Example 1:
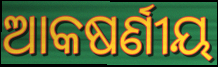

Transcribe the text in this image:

ଆକଷର୍ଣୀୟ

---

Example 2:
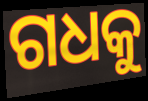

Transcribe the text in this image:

ଗଧକୁ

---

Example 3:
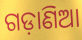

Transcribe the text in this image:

ଗଡ଼ାଣିଆ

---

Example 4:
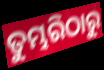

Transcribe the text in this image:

ତୁମ୍ଭରିଠାରୁ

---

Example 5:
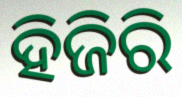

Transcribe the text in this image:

ହିଜିରି